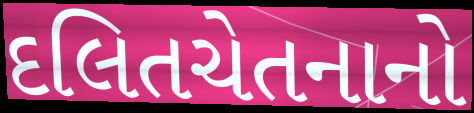
દલિતચેતનાનો